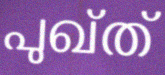
പുഖ്ത്